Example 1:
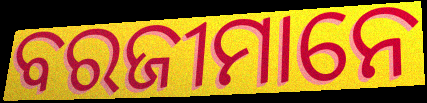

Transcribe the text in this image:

ବରଜୀମାନେ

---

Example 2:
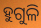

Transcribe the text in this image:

ହୁଗୁଳି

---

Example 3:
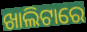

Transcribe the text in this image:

ଖାଲିଟାରେ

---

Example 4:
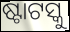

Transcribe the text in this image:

ଷ୍ଟାଟସ୍କୁ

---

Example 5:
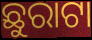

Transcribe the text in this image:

ଛୁରାଟା